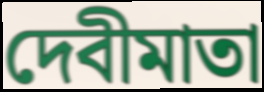
দেবীমাতা